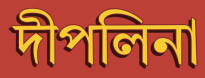
দীপলিনা